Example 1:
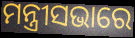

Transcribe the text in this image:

ମନ୍ତ୍ରୀସଭାରେ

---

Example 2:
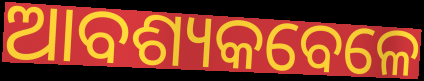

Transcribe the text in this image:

ଆବଶ୍ୟକବେଳେ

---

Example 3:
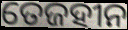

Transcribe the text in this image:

ତେଜହୀନ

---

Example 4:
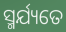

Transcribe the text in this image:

ସ୍ମର୍ଯ୍ୟତେ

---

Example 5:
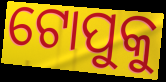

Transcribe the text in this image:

ଟୋପୁକୁ